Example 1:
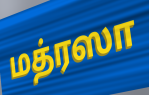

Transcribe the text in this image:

மத்ரஸா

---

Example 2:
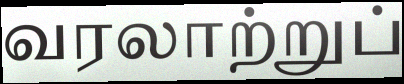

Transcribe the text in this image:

வரலாற்றுப்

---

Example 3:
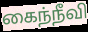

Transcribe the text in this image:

கைந்நீவி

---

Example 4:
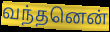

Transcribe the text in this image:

வந்தனென்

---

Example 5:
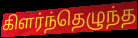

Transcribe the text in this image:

கிளர்ந்தெழுந்த